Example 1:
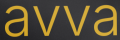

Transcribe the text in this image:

avva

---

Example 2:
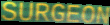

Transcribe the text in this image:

SURGEON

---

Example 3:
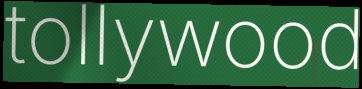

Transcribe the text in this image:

tollywood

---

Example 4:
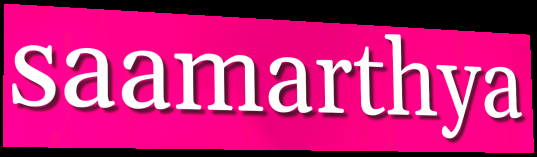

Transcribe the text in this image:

saamarthya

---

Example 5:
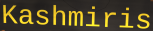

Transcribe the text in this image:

Kashmiris